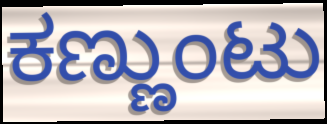
ಕಣ್ಣುಂಟು